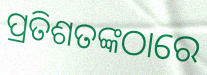
ପ୍ରତିଶତଙ୍କଠାରେ